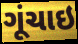
ગૂંચાઇ